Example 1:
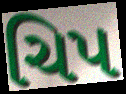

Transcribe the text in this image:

ચિપ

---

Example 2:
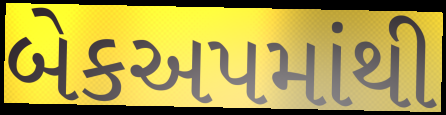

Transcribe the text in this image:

બેકઅપમાંથી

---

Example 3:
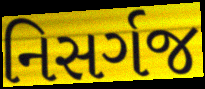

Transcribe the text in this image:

નિસર્ગજ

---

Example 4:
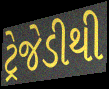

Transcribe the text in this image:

ટ્રેજેડીથી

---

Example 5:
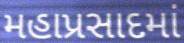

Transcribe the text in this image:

મહાપ્રસાદમાં